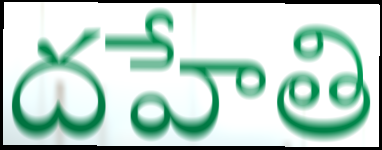
దహేతి